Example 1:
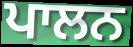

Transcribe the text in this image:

ਪਾਲਨ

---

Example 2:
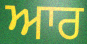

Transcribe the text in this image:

ਆਰ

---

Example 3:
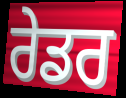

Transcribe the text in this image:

ਰੇਡਰ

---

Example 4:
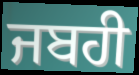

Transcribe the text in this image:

ਜਬਹੀ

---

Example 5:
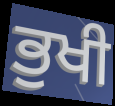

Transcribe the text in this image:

ਭੁਖੀ